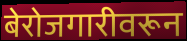
बेरोजगारीवरून